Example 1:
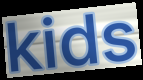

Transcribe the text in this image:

kids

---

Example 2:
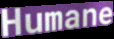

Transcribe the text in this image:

Humane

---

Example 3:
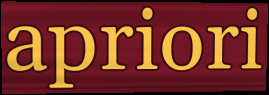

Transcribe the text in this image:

apriori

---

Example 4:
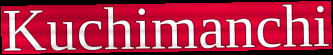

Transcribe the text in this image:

Kuchimanchi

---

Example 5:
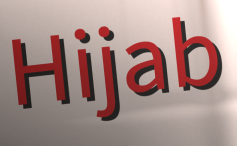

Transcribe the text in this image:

Hijab